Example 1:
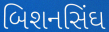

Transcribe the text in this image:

બિશનસિંઘ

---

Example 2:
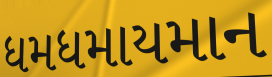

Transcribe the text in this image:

ધમધમાયમાન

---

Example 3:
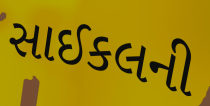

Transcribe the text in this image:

સાઈકલની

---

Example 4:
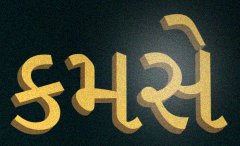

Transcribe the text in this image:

કમસે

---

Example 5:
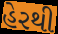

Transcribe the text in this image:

હેરથી